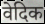
वेदिक